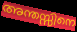
അന്തസ്സിനെ